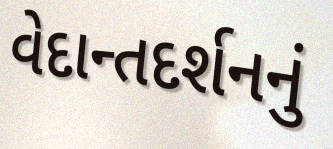
વેદાન્તદર્શનનું